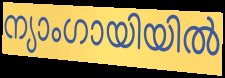
ന്യാംഗായിയിൽ